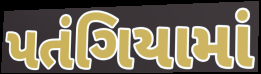
પતંગિયામાં